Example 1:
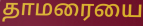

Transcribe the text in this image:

தாமரையை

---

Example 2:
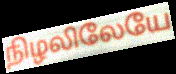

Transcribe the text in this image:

நிழலிலேயே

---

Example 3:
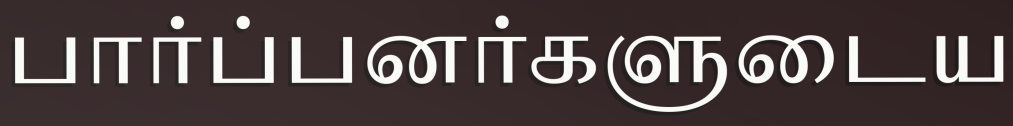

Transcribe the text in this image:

பார்ப்பனர்களுடைய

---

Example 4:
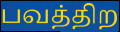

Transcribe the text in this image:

பவத்திற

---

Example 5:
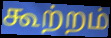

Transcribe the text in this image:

கூற்றம்